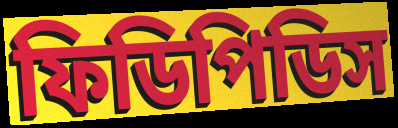
ফিডিপিডিস